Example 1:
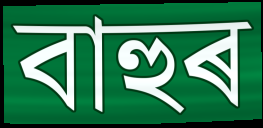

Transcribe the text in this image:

বাহুৰ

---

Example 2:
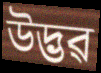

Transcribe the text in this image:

উদ্ভৱ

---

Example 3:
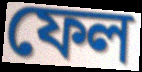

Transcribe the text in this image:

ফেল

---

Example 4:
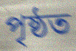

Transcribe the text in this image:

পৃষ্ঠত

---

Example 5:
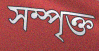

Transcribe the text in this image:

সম্পৃক্ত